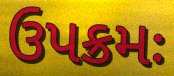
ઉપક્રમઃ